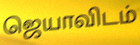
ஜெயாவிடம்